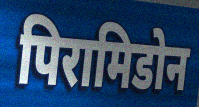
पिरामिडोन